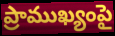
ప్రాముఖ్యంపై